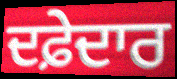
ਦਫ਼ੇਦਾਰ